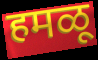
हमळू